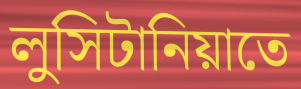
লুসিটানিয়াতে